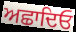
ਅਛਾਦਿਓ